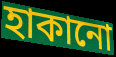
হাকানো